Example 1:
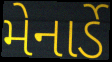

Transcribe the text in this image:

મેનાર્ડે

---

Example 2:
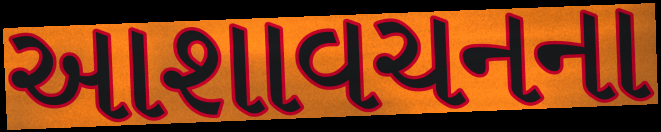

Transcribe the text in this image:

આશાવચનના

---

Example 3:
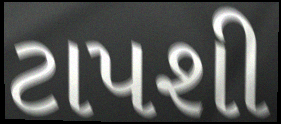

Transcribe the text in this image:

ટાપશી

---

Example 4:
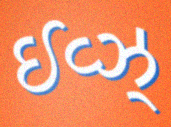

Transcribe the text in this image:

ઈવ્ઝ્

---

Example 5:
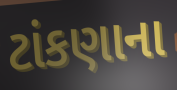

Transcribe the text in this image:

ટાંકણાના